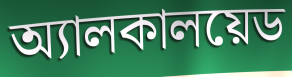
অ্যালকালয়েড